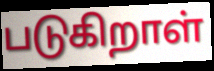
படுகிறாள்